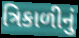
ત્રિકાળીનું